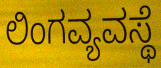
ಲಿಂಗವ್ಯವಸ್ಥೆ